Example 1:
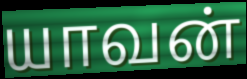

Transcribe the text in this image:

யாவன்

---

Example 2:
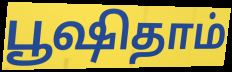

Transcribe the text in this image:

பூஷிதாம்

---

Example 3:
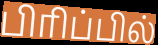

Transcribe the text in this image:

பிரிப்பில்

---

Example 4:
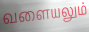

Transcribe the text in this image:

வளையலும்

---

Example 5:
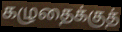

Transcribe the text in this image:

கழுதைக்குத்